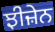
ਝੀਜ਼ੇਨ